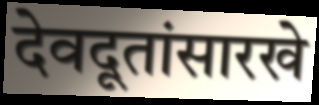
देवदूतांसारखे